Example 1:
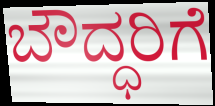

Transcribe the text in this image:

ಬೌದ್ಧರಿಗೆ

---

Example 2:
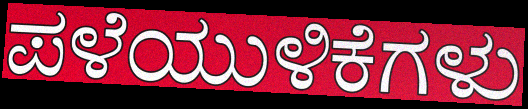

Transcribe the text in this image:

ಪಳೆಯುಳಿಕೆಗಳು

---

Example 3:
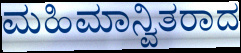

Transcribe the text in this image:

ಮಹಿಮಾನ್ವಿತರಾದ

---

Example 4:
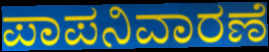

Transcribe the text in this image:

ಪಾಪನಿವಾರಣೆ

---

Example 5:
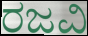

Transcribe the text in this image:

ರಜವಿ